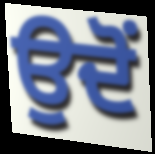
ਉਦੋਂ